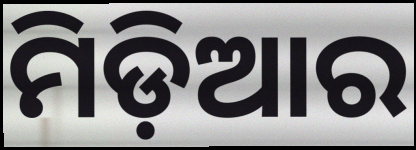
ମିଡ଼ିଆର